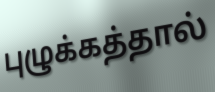
புழுக்கத்தால்